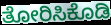
ತೋರಿಸಿಕೊಡಿ